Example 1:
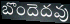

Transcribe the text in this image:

బొందెదవు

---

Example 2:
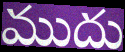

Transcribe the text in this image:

ముదు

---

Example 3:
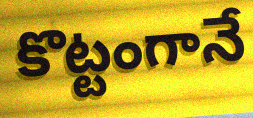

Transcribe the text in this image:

కొట్టంగానే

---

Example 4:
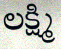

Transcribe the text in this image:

లక్ష్మి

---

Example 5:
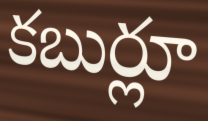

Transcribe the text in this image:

కబుర్లూ